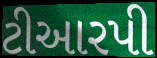
ટીઆરપી